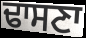
ਢਾਸਣਾ